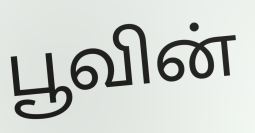
பூவின்